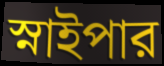
স্নাইপার